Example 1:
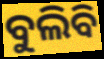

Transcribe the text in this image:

ବୁଲିବି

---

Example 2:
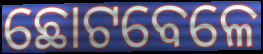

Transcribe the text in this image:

ଛୋଟବେଳେ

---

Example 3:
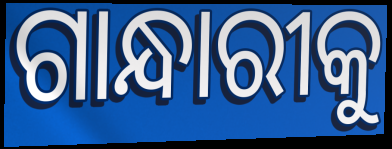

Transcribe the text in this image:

ଗାନ୍ଧାରୀକୁ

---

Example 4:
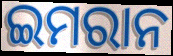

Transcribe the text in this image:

ଇମରାନ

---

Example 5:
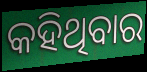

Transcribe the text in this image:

କହିଥିବାର